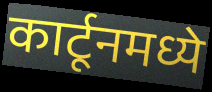
कार्टूनमध्ये